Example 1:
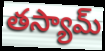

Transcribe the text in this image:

తస్యామ్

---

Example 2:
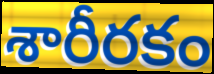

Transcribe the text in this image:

శారీరకం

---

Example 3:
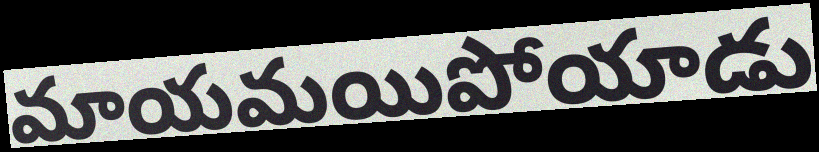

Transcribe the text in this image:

మాయమయిపోయాడు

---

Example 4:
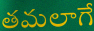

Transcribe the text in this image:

తమలాగే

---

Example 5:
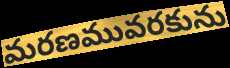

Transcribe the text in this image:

మరణమువరకును